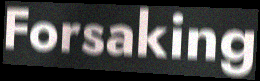
Forsaking